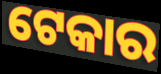
ଟେକାର